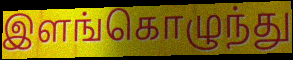
இளங்கொழுந்து